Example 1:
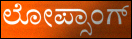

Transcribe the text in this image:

ಲೋಪ್ಸಾಂಗ್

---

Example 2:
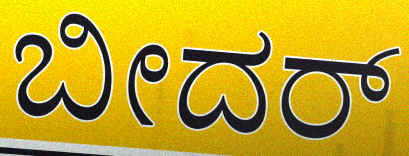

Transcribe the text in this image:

ಬೀದರ್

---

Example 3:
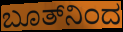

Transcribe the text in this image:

ಬೂತ್‌ನಿಂದ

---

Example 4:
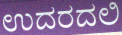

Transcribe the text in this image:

ಉದರದಲಿ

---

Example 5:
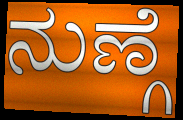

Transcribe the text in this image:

ನುಣ್ಗೆ